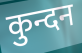
कुन्‍दन